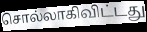
சொல்லாகிவிட்டது